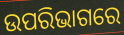
ଉପରିଭାଗରେ